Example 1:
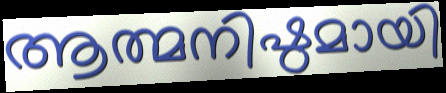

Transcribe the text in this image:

ആത്മനിഷ്ഠമായി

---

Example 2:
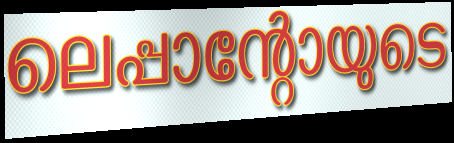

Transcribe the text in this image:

ലെപ്പാന്റോയുടെ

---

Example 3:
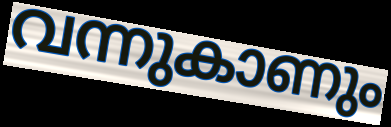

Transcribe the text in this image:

വന്നുകാണും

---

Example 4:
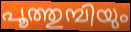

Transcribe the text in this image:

പൂത്തുമ്പിയും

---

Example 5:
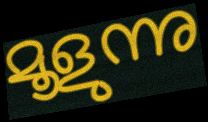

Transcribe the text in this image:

മൂളുന്നു